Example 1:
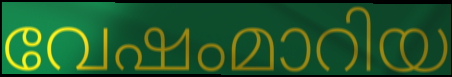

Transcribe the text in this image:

വേഷംമാറിയ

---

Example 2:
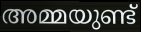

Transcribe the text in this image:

അമ്മയുണ്ട്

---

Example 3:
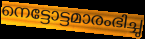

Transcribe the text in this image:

നെട്ടോട്ടമാരംഭിച്ചു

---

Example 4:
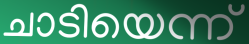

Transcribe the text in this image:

ചാടിയെന്ന്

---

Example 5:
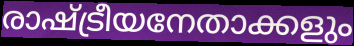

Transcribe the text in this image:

രാഷ്ട്രീയനേതാക്കളും